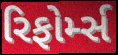
રિફોર્મ્સ